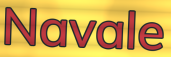
Navale